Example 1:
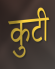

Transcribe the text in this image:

कुटी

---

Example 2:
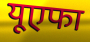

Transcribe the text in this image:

यूएफा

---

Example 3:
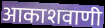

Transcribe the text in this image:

आकाशवाणी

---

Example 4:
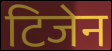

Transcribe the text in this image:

टिजेन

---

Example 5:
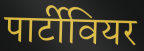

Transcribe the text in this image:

पार्टीवियर